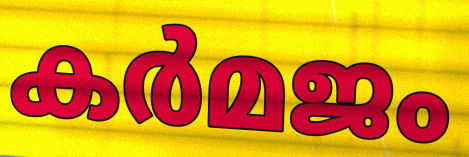
കർമജം